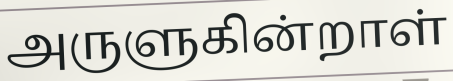
அருளுகின்றாள்